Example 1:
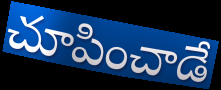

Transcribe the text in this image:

చూపించాడే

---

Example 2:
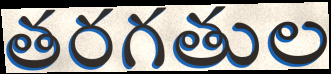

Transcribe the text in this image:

తరగతుల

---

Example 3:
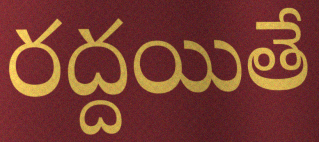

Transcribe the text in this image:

రద్దయితే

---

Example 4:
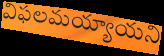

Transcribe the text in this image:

విఫలమయ్యాయని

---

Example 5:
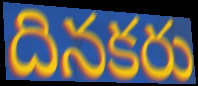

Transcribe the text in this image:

దినకరు